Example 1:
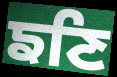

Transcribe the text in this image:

ਙਣਿ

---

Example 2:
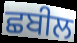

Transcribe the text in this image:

ਛਬੀਲ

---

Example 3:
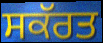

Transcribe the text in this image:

ਸਕੱਰਤ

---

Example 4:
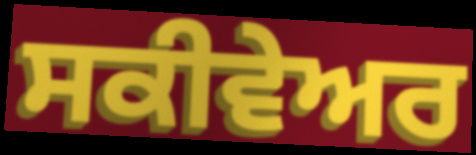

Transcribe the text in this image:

ਸਕੀਵੇਅਰ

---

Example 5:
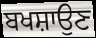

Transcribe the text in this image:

ਬਖਸ਼ਾਉਣ